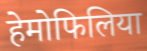
हेमोफिलिया